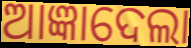
ଆଜ୍ଞାଦେଲା